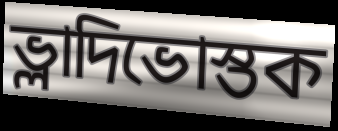
ভ্লাদিভোস্তক